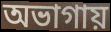
অভাগায়